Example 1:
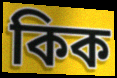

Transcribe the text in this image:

কিক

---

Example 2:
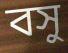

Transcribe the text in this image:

বসু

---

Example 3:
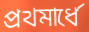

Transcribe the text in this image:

প্রথমার্ধে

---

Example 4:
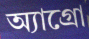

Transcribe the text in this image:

অ্যাগ্রো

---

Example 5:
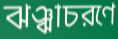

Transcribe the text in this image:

ঝঞ্ঝাচরণে